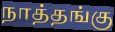
நாத்தங்கு